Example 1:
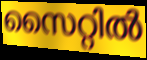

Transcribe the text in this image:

സൈറ്റിൽ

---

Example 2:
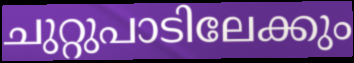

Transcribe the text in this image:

ചുറ്റുപാടിലേക്കും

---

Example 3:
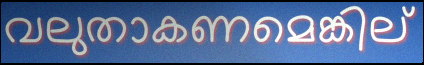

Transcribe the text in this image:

വലുതാകണമെങ്കില്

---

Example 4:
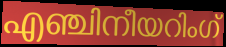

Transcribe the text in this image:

എഞ്ചിനീയറിംഗ്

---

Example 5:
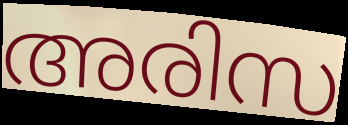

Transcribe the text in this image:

അരിസ